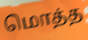
மொத்த